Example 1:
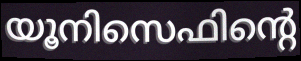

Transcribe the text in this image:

യൂനിസെഫിന്റെ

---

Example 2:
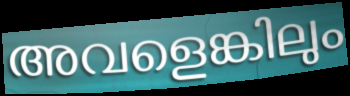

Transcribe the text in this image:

അവളെങ്കിലും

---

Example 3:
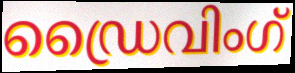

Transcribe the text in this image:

ഡ്രൈവിംഗ്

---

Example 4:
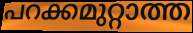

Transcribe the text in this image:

പറക്കമുറ്റാത്ത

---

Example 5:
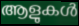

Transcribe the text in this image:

ആളുകൾ